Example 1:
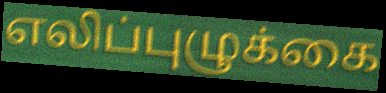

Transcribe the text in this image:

எலிப்புழுக்கை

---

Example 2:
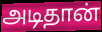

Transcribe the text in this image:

அடிதான்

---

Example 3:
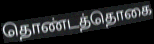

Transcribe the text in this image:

தொண்டத்தொகை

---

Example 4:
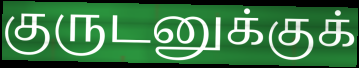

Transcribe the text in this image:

குருடனுக்குக்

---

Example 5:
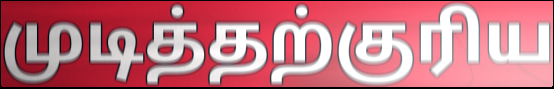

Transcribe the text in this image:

முடித்தற்குரிய